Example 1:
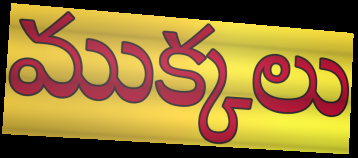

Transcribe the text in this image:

ముక్కలు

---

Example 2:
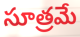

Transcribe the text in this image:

సూత్రమే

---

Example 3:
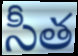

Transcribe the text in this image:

సీత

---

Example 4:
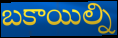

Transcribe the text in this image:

బకాయిల్ని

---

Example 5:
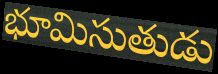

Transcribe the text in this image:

భూమిసుతుడు